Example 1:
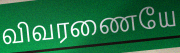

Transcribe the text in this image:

விவரணையே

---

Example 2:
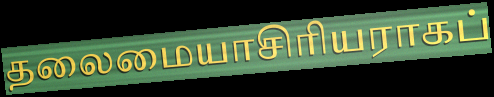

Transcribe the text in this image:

தலைமையாசிரியராகப்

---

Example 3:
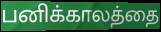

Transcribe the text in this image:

பனிக்காலத்தை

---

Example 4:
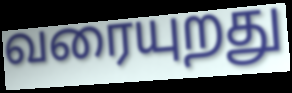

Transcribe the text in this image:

வரையுறது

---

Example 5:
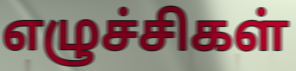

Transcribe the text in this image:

எழுச்சிகள்